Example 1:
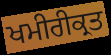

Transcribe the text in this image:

ਖਮੀਰੀਕ੍ਰਤ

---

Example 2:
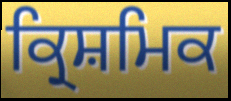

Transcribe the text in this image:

ਕ੍ਰਿਸ਼ਮਿਕ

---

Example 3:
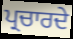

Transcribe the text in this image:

ਪ੍ਰਚਾਰਦੇ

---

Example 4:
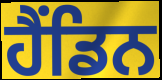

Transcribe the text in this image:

ਹੈਂਡਿਨ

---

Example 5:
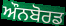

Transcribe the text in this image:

ਔਨਬੋਰਡ